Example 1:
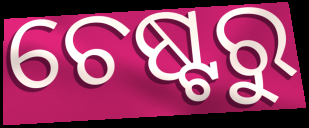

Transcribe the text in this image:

ଚେଷ୍ଟରୁ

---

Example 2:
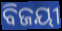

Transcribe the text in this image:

ବିଜୟୀ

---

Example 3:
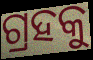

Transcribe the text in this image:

ଗ୍ରହକୁ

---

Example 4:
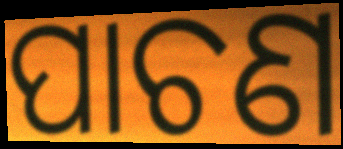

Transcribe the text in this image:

ପାଚଣ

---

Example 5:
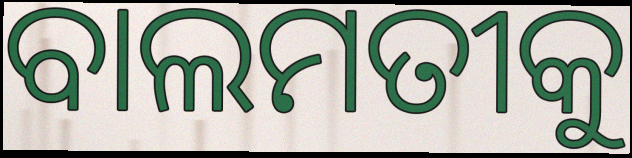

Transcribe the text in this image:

ବାଲମତୀକୁ